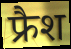
फ्रैश